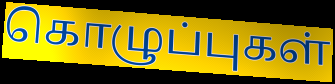
கொழுப்புகள்